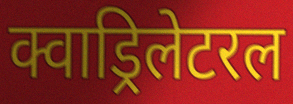
क्वाड्रिलेटरल